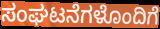
ಸಂಘಟನೆಗಳೊಂದಿಗೆ